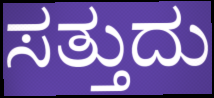
ಸತ್ತುದು